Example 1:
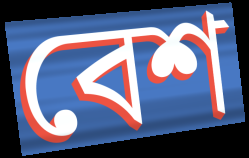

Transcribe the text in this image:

বেশ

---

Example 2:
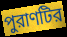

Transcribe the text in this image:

পুরাণটির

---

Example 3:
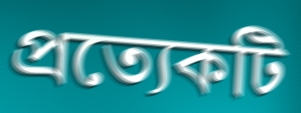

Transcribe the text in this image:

প্রত্যেকটি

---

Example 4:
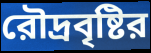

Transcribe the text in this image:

রৌদ্রবৃষ্টির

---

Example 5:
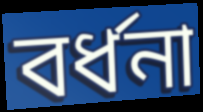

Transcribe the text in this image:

বর্ধনা